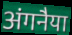
अंगनैया